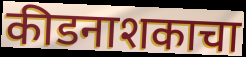
कीडनाशकाचा